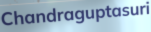
Chandraguptasuri